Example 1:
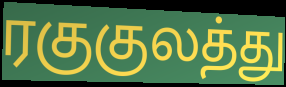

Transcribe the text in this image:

ரகுகுலத்து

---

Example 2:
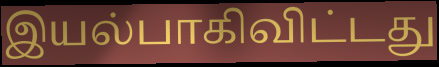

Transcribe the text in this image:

இயல்பாகிவிட்டது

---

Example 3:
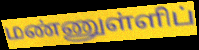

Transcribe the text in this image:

மண்ணுள்ளிப்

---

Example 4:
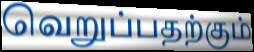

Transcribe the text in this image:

வெறுப்பதற்கும்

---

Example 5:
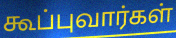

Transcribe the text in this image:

கூப்புவார்கள்